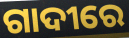
ଗାଦୀରେ